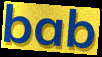
bab